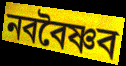
নববৈষ্ণব